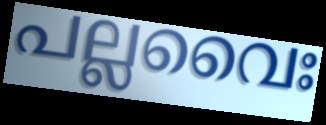
പല്ലവൈഃ